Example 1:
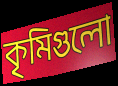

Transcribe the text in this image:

কৃমিগুলো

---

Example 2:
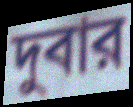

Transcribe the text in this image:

দুবার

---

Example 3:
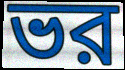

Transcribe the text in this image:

ভর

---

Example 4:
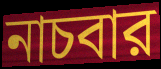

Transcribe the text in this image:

নাচবার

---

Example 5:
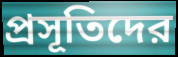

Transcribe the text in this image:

প্রসূতিদের